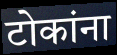
टोकांना